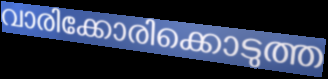
വാരിക്കോരിക്കൊടുത്ത